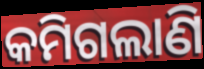
କମିଗଲାଣି